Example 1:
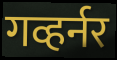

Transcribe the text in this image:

गव्हर्नर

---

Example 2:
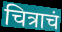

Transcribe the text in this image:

चित्राचं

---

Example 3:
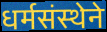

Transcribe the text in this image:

धर्मसंस्थेने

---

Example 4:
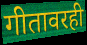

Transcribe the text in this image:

गीतावरही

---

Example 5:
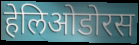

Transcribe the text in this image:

हेलिओडोरस